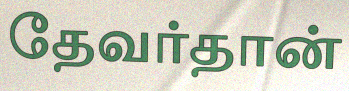
தேவர்தான்